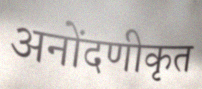
अनोंदणीकृत